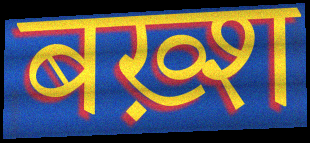
बख़्श